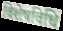
विशेषविधि